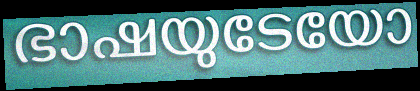
ഭാഷയുടേയോ